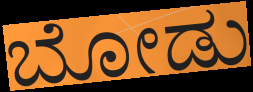
ಬೋಡು